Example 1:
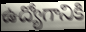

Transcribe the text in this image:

ఉద్యోగానికి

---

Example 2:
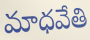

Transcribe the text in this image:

మాధవేతి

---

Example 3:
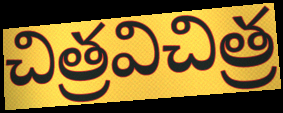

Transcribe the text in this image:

చిత్రవిచిత్ర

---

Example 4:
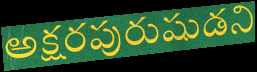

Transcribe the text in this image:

అక్షరపురుషుడని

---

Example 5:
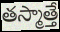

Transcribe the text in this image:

తస్మాత్తే